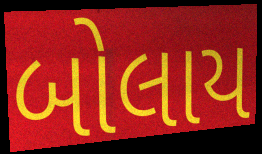
બોલાય